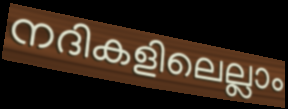
നദികളിലെല്ലാം